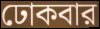
ঢোকবার